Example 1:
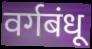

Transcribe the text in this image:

वर्गबंधू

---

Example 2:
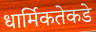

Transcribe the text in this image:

धार्मिकतेकडे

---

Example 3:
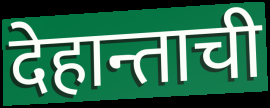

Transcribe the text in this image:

देहान्ताची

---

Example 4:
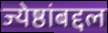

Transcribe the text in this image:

ज्येष्ठांबद्दल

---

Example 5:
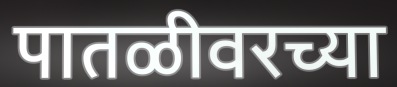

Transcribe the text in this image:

पातळीवरच्या